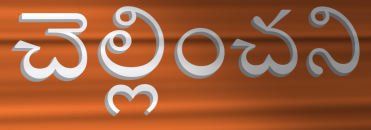
చెల్లించని